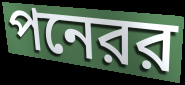
পনেরর